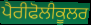
ਪੈਰੀਫੋਲੀਕੂਲਰ